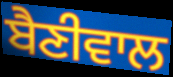
ਬੈਣੀਵਾਲ